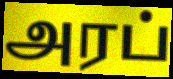
அரப்